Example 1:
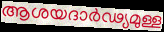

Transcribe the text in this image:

ആശയദാർഢ്യമുള്ള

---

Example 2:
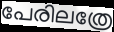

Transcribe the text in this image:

പേരിലത്രേ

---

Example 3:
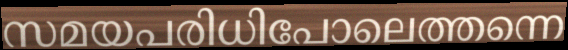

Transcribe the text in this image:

സമയപരിധിപോലെത്തന്നെ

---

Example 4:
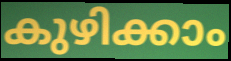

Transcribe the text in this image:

കുഴിക്കാം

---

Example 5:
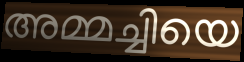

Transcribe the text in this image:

അമ്മച്ചിയെ